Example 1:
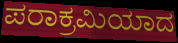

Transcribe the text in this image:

ಪರಾಕ್ರಮಿಯಾದ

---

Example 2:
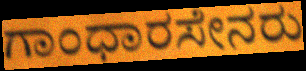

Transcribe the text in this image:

ಗಾಂಧಾರಸೇನರು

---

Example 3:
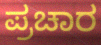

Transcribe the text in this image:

ಪ್ರಚಾರ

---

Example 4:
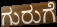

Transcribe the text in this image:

ಗುರುಗೆ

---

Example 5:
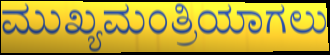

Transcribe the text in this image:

ಮುಖ್ಯಮಂತ್ರಿಯಾಗಲು